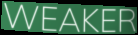
WEAKER